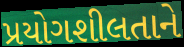
પ્રયોગશીલતાને